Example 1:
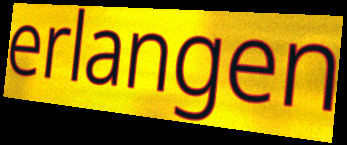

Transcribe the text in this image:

erlangen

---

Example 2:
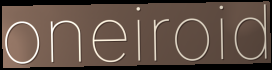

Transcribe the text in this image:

oneiroid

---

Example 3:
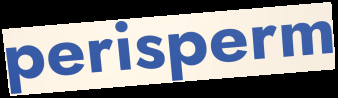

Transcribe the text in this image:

perisperm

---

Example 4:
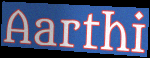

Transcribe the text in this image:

Aarthi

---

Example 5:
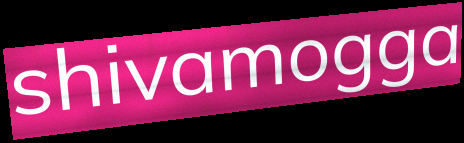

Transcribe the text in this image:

shivamogga